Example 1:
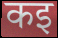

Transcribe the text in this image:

कइ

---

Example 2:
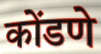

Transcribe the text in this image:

कोंडणे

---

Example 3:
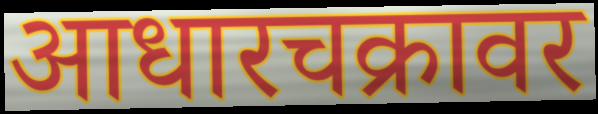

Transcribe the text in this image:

आधारचक्रावर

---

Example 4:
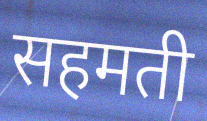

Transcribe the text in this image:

सहमती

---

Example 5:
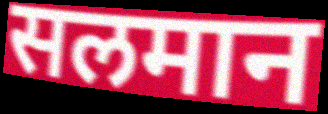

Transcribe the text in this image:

सलमान